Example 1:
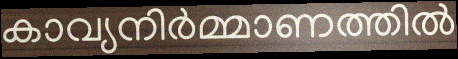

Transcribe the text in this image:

കാവ്യനിർമ്മാണത്തിൽ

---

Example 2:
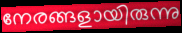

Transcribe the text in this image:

നേരങ്ങളായിരുന്നു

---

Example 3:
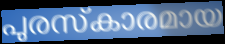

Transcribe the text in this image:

പുരസ്‌കാരമായ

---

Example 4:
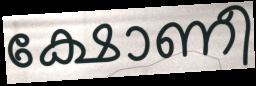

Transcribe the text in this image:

ക്ഷോണീ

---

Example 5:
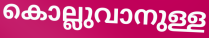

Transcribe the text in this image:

കൊല്ലുവാനുള്ള